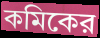
কমিকের